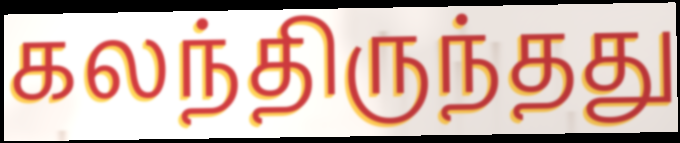
கலந்திருந்தது